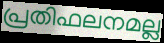
പ്രതിഫലനമല്ല